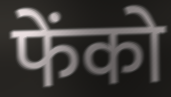
फेंको